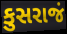
કુસરાજં